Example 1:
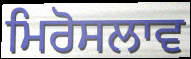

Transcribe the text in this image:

ਮਿਰੋਸਲਾਵ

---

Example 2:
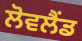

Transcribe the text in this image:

ਲੋਵਲੈਂਡ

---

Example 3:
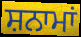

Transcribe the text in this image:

ਸ਼ਨਾਮਾਂ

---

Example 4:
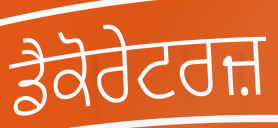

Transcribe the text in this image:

ਡੈਕੋਰੇਟਰਜ਼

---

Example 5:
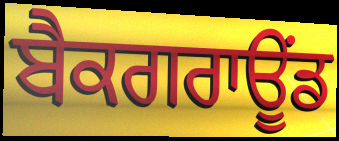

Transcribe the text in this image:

ਬੈਕਗਰਾਊਂਡ